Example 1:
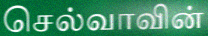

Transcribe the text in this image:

செல்வாவின்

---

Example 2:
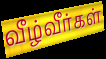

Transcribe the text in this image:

வீழ்வீர்கள்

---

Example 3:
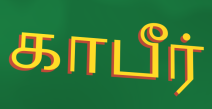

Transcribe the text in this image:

காபீர்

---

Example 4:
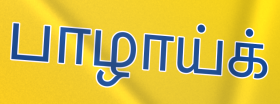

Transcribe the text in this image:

பாழாய்க்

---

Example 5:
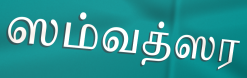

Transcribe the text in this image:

ஸம்வத்ஸர